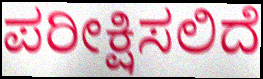
ಪರೀಕ್ಷಿಸಲಿದೆ